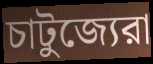
চাটুজ্যেরা